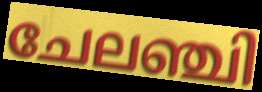
ചേലഞ്ചി